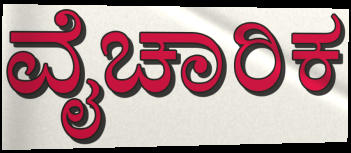
ವೈಚಾರಿಕ